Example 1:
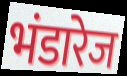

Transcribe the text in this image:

भंडारेज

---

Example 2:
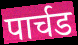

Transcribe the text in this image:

पार्चड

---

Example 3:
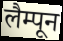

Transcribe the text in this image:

लैम्पून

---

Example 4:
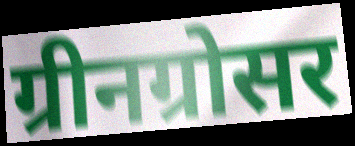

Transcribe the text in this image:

ग्रीनग्रोसर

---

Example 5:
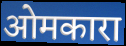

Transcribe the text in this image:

ओमकारा